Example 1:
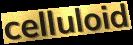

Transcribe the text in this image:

celluloid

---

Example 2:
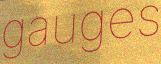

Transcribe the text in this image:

gauges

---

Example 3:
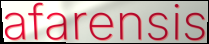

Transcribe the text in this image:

afarensis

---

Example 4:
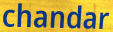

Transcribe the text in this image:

chandar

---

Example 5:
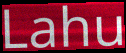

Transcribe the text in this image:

Lahu